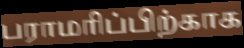
பராமரிப்பிற்காக